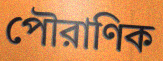
পৌরাণিক